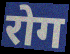
रोग